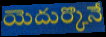
యెదుర్కొనే